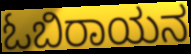
ಓಬಿರಾಯನ